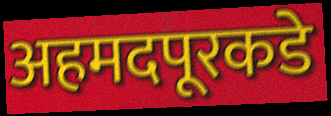
अहमदपूरकडे